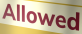
Allowed